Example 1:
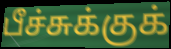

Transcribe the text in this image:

பீச்சுக்குக்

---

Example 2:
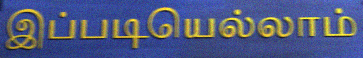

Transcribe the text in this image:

இப்படியெல்லாம்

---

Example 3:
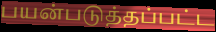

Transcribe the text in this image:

பயன்படுத்தப்பட்ட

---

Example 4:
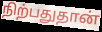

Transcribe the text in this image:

நிற்பதுதான்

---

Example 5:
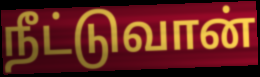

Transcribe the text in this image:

நீட்டுவான்